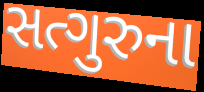
સત્ગુરુના